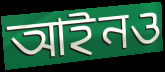
আইনও